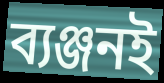
ব্যঞ্জনই